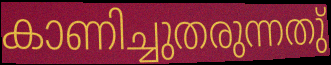
കാണിച്ചുതരുന്നതു്